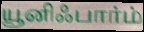
யூனிஃபார்ம்